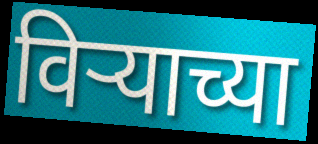
विर्‍याच्या